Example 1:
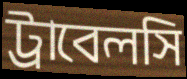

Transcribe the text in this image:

ট্রাবেলসি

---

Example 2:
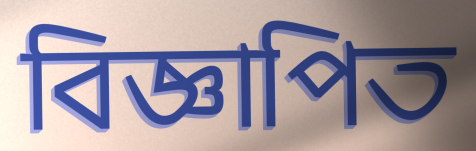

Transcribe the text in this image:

বিজ্ঞাপিত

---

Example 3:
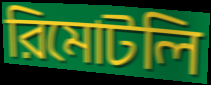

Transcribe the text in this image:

রিমোটলি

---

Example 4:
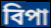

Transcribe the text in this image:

বিপা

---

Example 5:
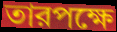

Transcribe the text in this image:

তারপক্ষে